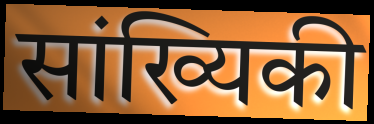
सांख्यिकी